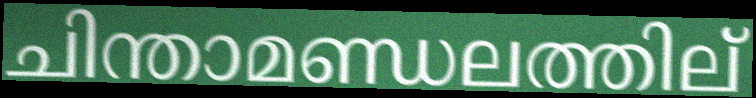
ചിന്താമണ്ഡലത്തില്